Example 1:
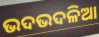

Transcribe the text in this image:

ଭଦଭଦଳିଆ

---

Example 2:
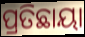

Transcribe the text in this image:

ପ୍ରତିଛାୟା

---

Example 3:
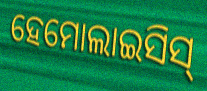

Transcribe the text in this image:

ହେମୋଲାଇସିସ୍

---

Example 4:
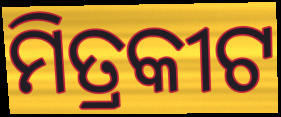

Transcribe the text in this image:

ମିତ୍ରକୀଟ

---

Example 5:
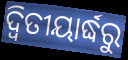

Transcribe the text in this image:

ଦ୍ଵିତୀୟାର୍ଦ୍ଧରୁ